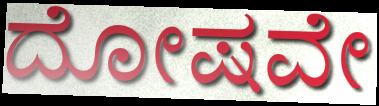
ದೋಷವೇ